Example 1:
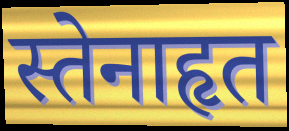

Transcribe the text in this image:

स्तेनाहृत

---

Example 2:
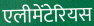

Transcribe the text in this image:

एलीमेंटेरियस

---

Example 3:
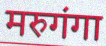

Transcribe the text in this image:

मरुगंगा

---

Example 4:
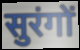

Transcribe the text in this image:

सुरंगों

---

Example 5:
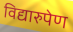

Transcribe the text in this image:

विद्यारुपेण